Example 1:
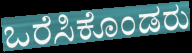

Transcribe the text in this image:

ಒರೆಸಿಕೊಂಡರು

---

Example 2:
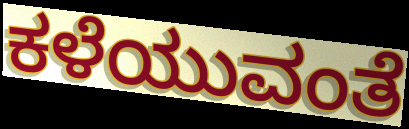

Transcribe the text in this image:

ಕಳೆಯುವಂತೆ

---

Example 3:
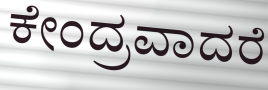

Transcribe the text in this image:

ಕೇಂದ್ರವಾದರೆ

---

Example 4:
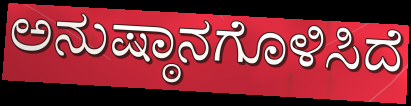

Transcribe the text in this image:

ಅನುಷ್ಠಾನಗೊಳಿಸಿದೆ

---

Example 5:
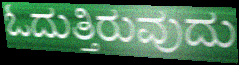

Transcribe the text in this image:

ಓದುತ್ತಿರುವುದು